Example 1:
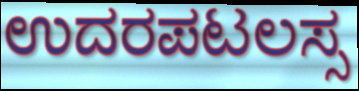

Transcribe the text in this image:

ಉದರಪಟಲಸ್ಸ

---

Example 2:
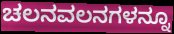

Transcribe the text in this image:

ಚಲನವಲನಗಳನ್ನೂ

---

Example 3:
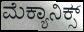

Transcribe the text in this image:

ಮೆಕ್ಯಾನಿಕ್ಸ್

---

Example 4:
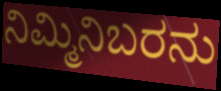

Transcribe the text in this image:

ನಿಮ್ಮಿನಿಬರನು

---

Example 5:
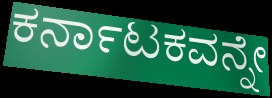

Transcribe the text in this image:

ಕರ್ನಾಟಕವನ್ನೇ